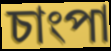
চাংপা